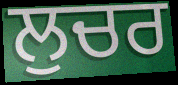
ਲੁਚਰ